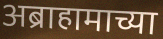
अब्राहामाच्या